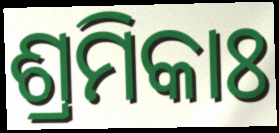
ଶ୍ରମିକାଃ